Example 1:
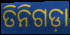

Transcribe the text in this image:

ତିନିଗଡ଼ା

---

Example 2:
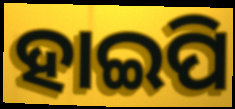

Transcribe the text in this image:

ହାଇପି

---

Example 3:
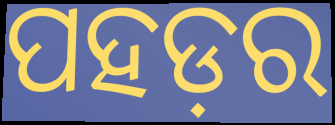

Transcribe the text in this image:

ପହଡ଼ର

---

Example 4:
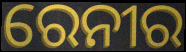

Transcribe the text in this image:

ରେନୀର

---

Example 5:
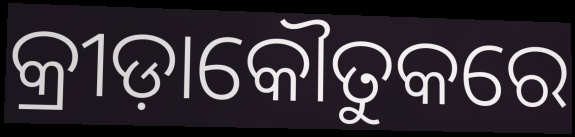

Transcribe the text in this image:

କ୍ରୀଡ଼ାକୌତୁକରେ